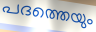
പദത്തെയും